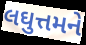
લઘુત્તમને